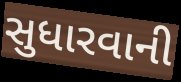
સુધારવાની